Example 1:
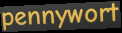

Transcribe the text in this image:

pennywort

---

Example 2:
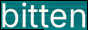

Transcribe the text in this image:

bitten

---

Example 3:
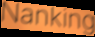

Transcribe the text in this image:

Nanking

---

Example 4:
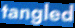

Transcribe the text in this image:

tangled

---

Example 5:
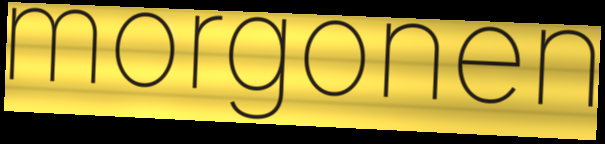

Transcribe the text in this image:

morgonen